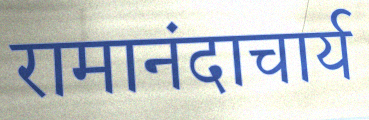
रामानंदाचार्य